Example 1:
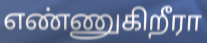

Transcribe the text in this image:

எண்ணுகிறீரா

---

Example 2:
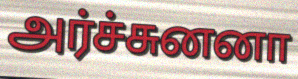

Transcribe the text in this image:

அர்ச்சுனனா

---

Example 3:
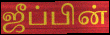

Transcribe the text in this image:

ஜீப்பின்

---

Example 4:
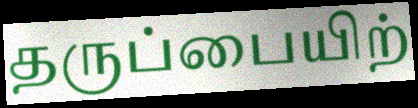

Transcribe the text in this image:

தருப்பையிற்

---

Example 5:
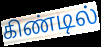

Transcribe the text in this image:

கிண்டில்